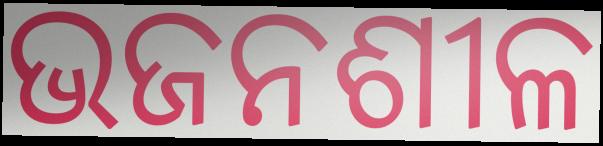
ଭଜନଶୀଳ